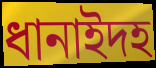
ধানাইদহ